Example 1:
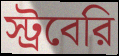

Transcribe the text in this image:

স্ট্রবেরি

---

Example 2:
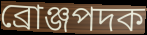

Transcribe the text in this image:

ব্রোঞ্জপদক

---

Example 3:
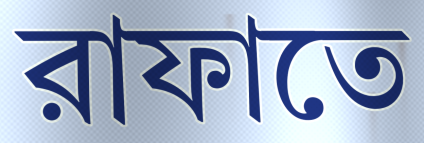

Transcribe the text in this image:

রাফাতে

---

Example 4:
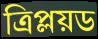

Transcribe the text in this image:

ত্রিপ্লয়ড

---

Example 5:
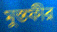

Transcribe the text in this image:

মুস্তফীর